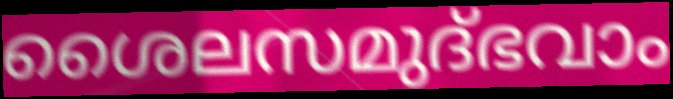
ശൈലസമുദ്ഭവാം